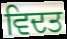
ਵਿਦਤ